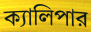
ক্যালিপার